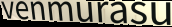
venmurasu